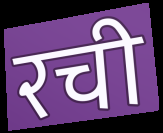
रची